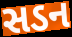
સડન